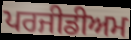
ਪਰਜੀਡੀਅਮ